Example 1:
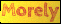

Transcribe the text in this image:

Morely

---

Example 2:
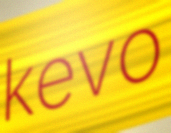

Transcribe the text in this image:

kevo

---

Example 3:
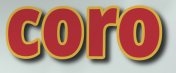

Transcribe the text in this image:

coro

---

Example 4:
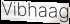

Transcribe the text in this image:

Vibhaag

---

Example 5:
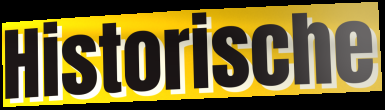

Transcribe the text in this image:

Historische